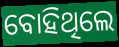
ବୋହିଥିଲେ